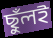
ছুঁলই